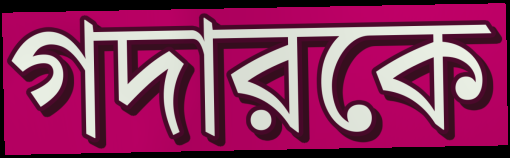
গদারকে